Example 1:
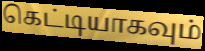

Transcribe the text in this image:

கெட்டியாகவும்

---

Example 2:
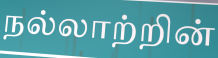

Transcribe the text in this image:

நல்லாற்றின்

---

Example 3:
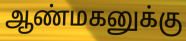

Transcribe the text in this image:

ஆண்மகனுக்கு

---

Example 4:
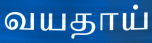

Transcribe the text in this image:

வயதாய்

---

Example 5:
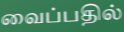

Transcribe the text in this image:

வைப்பதில்